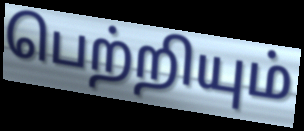
பெற்றியும்